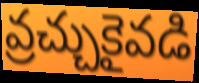
వ్రచ్చుకైవడి